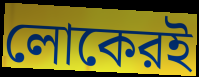
লোকেরই